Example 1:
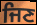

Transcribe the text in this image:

ਜਿਣ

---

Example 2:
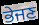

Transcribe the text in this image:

ਭੇਜਣ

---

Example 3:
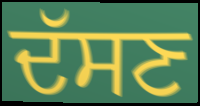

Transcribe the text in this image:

ਦੱਸਣ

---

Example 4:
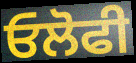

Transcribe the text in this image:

ਓਲੋਫੀ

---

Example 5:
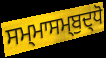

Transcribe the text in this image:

ਸਮ੍ਮਾਸਮ੍ਬੁਦ੍ਧੋ